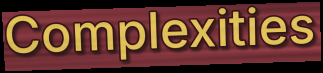
Complexities